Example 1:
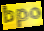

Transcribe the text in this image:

bpo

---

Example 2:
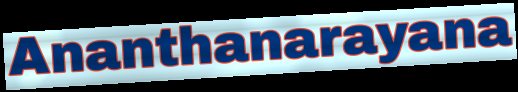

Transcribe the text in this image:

Ananthanarayana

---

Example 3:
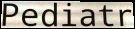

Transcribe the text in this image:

Pediatr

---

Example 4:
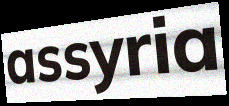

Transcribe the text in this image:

assyria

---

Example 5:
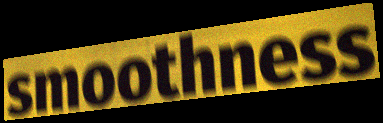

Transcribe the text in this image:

smoothness